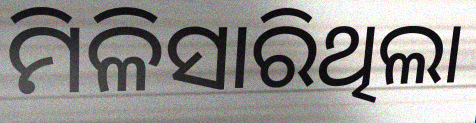
ମିଳିସାରିଥିଲା